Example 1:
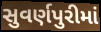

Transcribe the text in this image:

સુવર્ણપુરીમાં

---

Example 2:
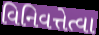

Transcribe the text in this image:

વિનિવત્તેત્વા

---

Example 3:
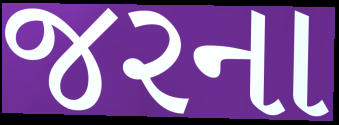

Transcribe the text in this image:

જરના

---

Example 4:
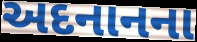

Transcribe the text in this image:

અદનાનના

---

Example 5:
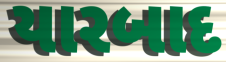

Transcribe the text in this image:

યારબાદ